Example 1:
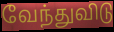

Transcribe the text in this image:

வேந்துவிடு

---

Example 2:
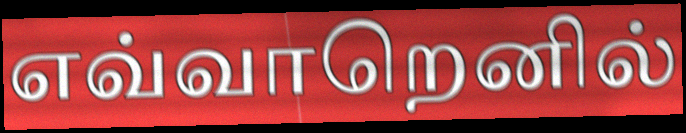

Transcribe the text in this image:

எவ்வாறெனில்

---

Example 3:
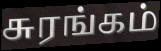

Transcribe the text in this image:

சுரங்கம்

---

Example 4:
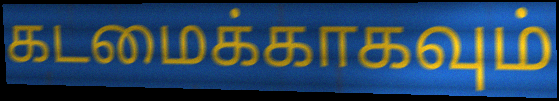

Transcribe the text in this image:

கடமைக்காகவும்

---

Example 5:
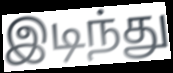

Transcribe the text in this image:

இடிந்து